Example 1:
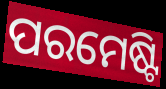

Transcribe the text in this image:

ପରମେଷ୍ଟି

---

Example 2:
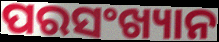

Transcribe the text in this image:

ପରସଂଖ୍ୟାନ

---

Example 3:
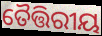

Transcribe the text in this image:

ତୈତ୍ତିରୀୟ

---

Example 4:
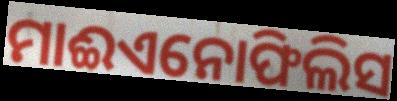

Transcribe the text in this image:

ମାଈଏନୋଫିଲିସ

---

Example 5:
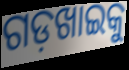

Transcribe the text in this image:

ଗଡ଼ଖାଇକୁ